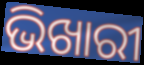
ଭିଖାରୀ